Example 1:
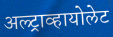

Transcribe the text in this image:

अल्ट्राव्हायोलेट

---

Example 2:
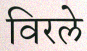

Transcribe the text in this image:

विरले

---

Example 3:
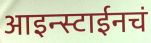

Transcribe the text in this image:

आइन्स्टाईनचं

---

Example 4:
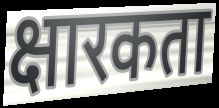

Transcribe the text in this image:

क्षारकता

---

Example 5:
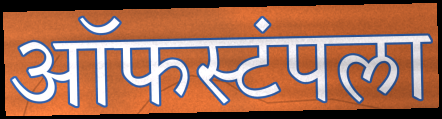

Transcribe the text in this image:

ऑफस्टंपला